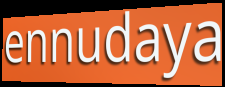
ennudaya